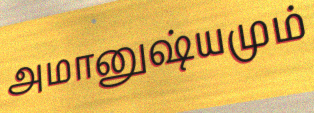
அமானுஷ்யமும்